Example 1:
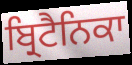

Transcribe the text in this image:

ਬ੍ਰਿਟੈਨਿਕਾ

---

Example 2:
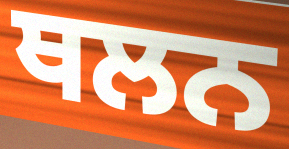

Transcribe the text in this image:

ਥਲਨ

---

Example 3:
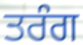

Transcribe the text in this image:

ਤਰੰਗ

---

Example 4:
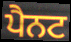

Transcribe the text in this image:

ਪੈਨਟ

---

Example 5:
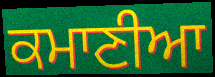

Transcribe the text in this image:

ਕਮਾਣੀਆ